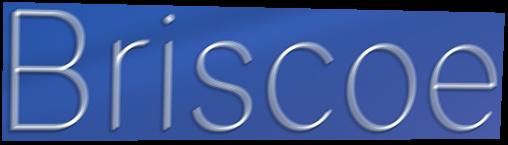
Briscoe